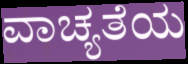
ವಾಚ್ಯತೆಯ